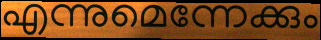
എന്നുമെന്നേക്കും